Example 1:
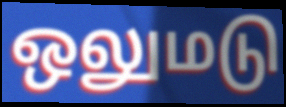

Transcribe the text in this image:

ஒலுமடு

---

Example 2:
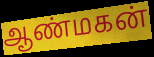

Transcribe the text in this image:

ஆண்மகன்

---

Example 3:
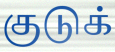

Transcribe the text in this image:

குடுக்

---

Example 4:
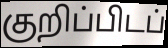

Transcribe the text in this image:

குறிப்பிடப்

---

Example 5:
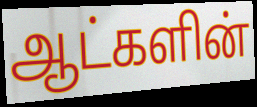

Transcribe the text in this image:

ஆட்களின்